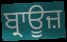
ਬ੍ਰਾਊਜ਼